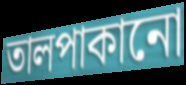
তালপাকানো